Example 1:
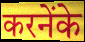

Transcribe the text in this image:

करनेंके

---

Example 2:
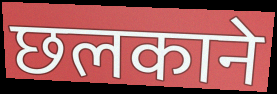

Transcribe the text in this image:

छलकाने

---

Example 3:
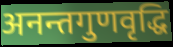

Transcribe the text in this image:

अनन्तगुणवृद्धि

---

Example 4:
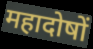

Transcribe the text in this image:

महादोषों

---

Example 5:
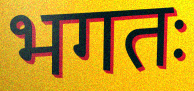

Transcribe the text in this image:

भगतः